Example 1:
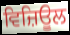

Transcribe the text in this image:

ਵਿਜ਼ਿਊਲ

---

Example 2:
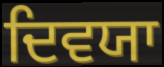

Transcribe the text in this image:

ਦਿਵਯਾ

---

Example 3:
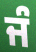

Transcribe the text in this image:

ਜੰ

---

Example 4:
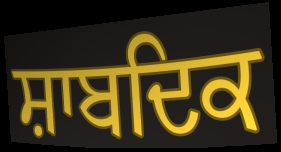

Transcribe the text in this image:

ਸ਼ਾਬਦਿਕ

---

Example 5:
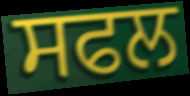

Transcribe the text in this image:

ਸਫਲ